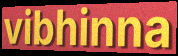
vibhinna